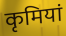
कृमियां